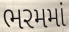
ભરમમાં